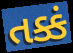
તક્કં